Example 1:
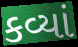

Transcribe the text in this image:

કવ્યાં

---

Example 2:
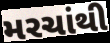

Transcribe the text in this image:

મરચાંથી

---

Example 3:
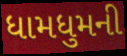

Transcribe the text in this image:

ધામધુમની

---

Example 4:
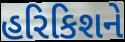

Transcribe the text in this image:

હરિકિશને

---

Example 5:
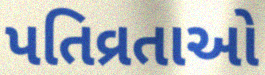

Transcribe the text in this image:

પતિવ્રતાઓ